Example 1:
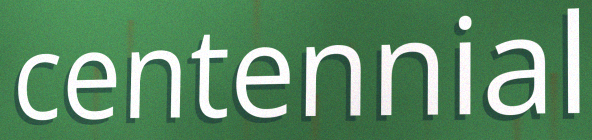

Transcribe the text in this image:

centennial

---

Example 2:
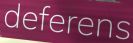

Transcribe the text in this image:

deferens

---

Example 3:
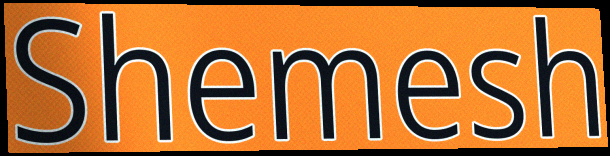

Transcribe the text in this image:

Shemesh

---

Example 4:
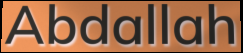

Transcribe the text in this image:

Abdallah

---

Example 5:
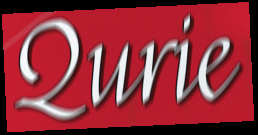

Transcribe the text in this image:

Qurie